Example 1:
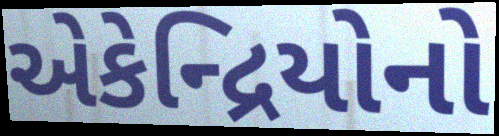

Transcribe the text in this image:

એકેન્દ્રિયોનો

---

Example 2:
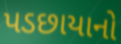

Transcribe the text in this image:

પડછાયાનો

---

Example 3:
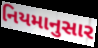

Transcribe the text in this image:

નિયમાનુસાર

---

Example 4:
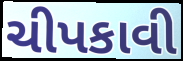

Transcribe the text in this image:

ચીપકાવી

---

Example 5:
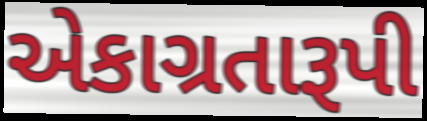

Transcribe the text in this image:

એકાગ્રતારૂપી